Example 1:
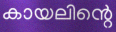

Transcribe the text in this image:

കായലിന്റെ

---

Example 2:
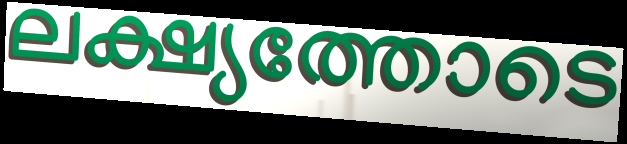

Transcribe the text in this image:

ലക്ഷ്യത്തോടെ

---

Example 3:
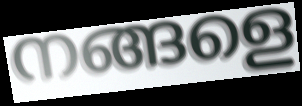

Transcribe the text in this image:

നങ്ങളെ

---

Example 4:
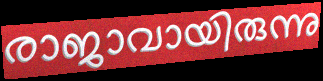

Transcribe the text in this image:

രാജാവായിരുന്നു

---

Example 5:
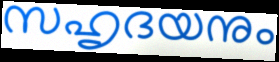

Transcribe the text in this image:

സഹൃദയനും